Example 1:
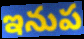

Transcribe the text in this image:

ఇనుప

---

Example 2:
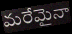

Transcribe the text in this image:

మరేమైనా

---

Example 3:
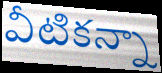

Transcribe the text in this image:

వీటికన్నా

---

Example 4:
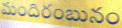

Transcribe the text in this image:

మందిరంబునం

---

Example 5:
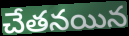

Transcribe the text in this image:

చేతనయిన